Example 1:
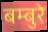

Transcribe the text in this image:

बम्बुरे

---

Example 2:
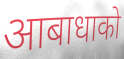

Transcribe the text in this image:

आबाधाको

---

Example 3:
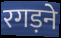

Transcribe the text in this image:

रगड़ने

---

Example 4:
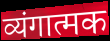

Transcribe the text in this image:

व्यंगात्मक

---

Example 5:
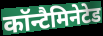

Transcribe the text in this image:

कॉन्टैमिनेटेड